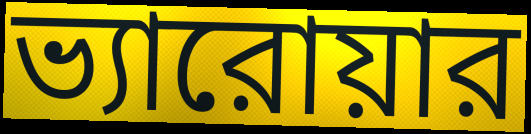
ভ্যারোয়ার